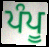
ਪੰਪੂ